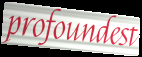
profoundest